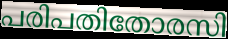
പരിപതിതോരസി